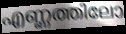
എണ്ണത്തിലോ